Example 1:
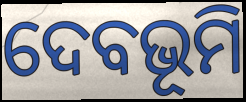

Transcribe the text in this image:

ଦେବଭୂମି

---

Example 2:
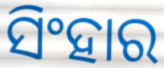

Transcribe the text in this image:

ସିଂହାର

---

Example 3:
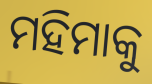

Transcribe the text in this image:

ମହିମାକୁ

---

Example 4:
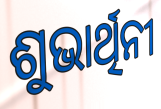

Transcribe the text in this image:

ଶୁଭାର୍ଥିନୀ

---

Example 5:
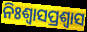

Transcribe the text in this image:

ନିଃଶ୍ୱାସପ୍ରଶ୍ୱାସ